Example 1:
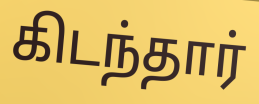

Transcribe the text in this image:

கிடந்தார்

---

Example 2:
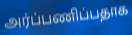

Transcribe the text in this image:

அர்ப்பணிப்பதாக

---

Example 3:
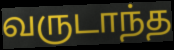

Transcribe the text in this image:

வருடாந்த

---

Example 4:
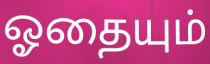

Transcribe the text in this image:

ஓதையும்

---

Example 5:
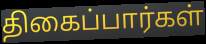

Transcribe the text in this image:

திகைப்பார்கள்